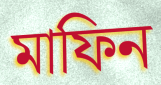
মাফিন